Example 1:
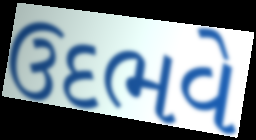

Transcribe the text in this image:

ઉદભવે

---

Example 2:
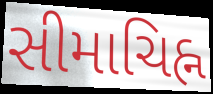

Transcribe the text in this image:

સીમાચિહ્ન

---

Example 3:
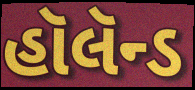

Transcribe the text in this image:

હૉલૅન્ડ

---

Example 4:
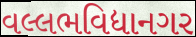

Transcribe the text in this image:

વલ્લભવિદ્યાનગર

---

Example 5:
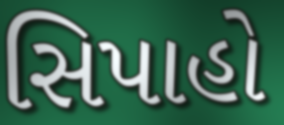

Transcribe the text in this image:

સિપાહો